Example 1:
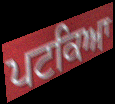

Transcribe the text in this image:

ਪਟਕਿਆ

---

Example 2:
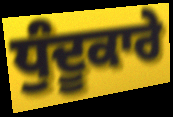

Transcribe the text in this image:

ਧੁੰਦੂਕਾਰੇ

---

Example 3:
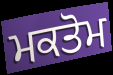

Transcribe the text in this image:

ਮਕਤੋਮ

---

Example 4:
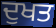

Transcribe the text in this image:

ਦੁਖਤ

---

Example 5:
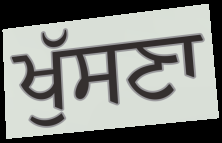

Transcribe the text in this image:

ਖੁੱਸਣਾ